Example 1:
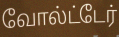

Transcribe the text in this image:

வோல்ட்டேர்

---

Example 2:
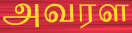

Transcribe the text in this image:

அவரள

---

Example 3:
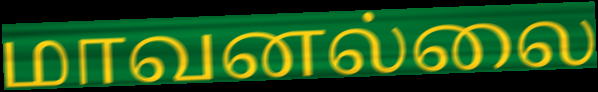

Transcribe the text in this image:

மாவனல்லை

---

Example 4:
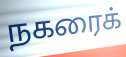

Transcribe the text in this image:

நகரைக்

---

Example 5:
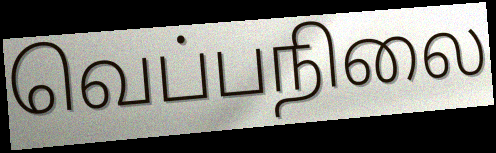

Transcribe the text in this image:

வெப்பநிலை